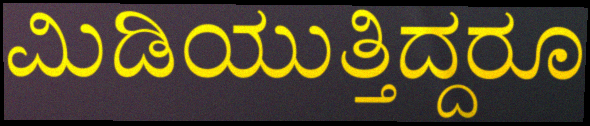
ಮಿಡಿಯುತ್ತಿದ್ದರೂ